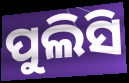
ପୁଲିସି